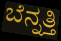
ಬೆನ್ನತ್ತಿ